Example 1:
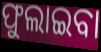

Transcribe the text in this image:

ଫୁଲାଇବା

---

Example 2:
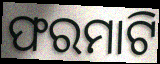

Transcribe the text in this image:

ଫରମାଟି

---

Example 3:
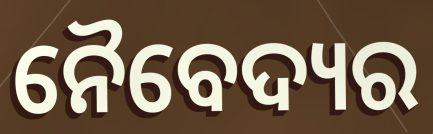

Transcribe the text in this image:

ନୈବେଦ୍ୟର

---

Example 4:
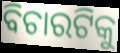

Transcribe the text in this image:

ବିଚାରଟିକୁ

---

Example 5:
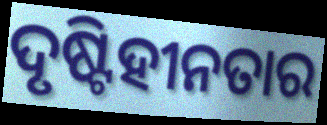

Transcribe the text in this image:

ଦୃଷ୍ଟିହୀନତାର